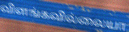
விளங்கவில்லையா